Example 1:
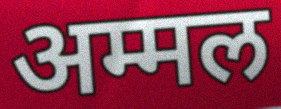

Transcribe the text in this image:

अम्मल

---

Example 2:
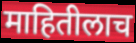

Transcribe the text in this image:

माहितीलाच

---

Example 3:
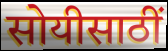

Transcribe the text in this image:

सोयीसाठीं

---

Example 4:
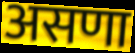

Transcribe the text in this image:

असणा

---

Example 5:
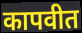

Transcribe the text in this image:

कापवीत